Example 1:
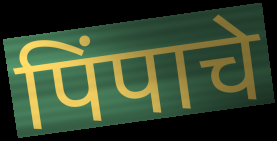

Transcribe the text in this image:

पिंपाचे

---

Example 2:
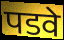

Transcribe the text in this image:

पडवे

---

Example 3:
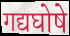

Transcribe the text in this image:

गद्यघोषे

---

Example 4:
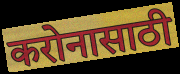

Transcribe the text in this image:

करोनासाठी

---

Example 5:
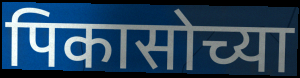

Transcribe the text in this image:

पिकासोच्या